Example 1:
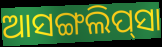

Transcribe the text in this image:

ଆସଙ୍ଗଲିପ୍‌ସା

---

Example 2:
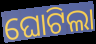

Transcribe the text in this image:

ଘୋଟିଲା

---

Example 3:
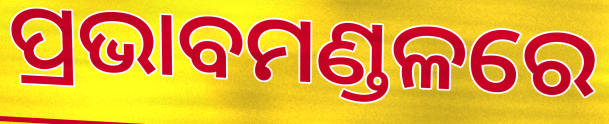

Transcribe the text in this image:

ପ୍ରଭାବମଣ୍ଡଳରେ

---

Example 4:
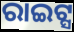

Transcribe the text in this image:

ରାଇଟ୍ସ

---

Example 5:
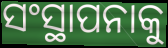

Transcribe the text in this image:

ସଂସ୍ଥାପନାକୁ